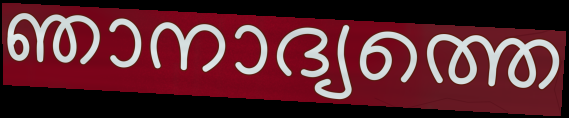
ഞാനാദ്യത്തെ